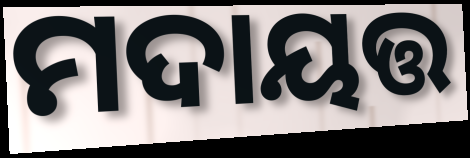
ମଦାୟତ୍ତ